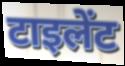
टाइलेंट